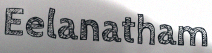
Eelanatham